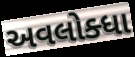
અવલોક્ધા